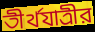
তীর্থযাত্রীর